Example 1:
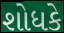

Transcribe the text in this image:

શોધકે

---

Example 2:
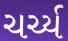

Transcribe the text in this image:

ચર્ચ્ય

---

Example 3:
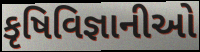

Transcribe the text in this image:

કૃષિવિજ્ઞાનીઓ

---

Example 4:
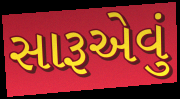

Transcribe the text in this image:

સારૂએવું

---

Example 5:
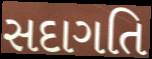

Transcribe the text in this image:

સદાગતિ